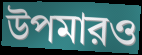
উপমারও